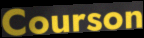
Courson